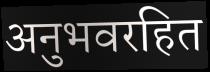
अनुभवरहित